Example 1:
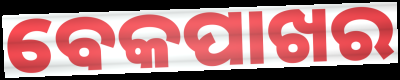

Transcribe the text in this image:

ବେକପାଖର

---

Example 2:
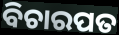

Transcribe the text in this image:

ବିଚାରପତ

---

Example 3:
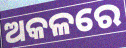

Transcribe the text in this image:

ଅକଳରେ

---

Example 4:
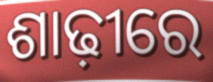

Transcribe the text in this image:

ଶାଢ଼ୀରେ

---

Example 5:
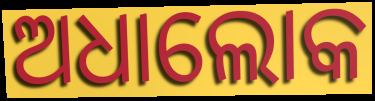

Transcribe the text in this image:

ଅଧାଲୋକ